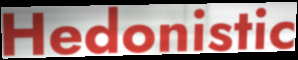
Hedonistic